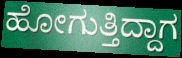
ಹೋಗುತ್ತಿದ್ದಾಗ